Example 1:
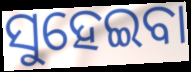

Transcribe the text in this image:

ସୁହେଇବା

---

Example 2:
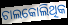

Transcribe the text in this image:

ଚାଲକୋଲିଥିକ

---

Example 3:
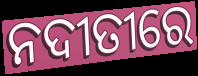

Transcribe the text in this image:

ନଦୀତୀରେ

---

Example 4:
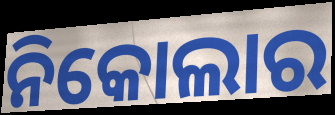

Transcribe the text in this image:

ନିକୋଲାର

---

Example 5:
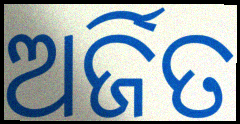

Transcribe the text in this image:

ଅର୍ଜିତ